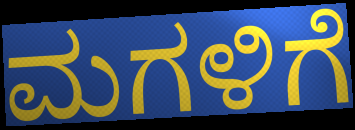
ಮಗಳಿಗೆ